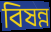
বিষন্ন